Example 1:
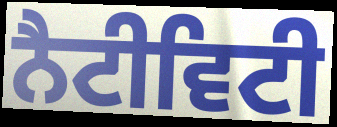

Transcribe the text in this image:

ਨੈਟੀਵਿਟੀ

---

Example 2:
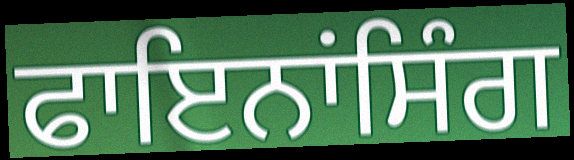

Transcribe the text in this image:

ਫਾਇਨਾਂਸਿੰਗ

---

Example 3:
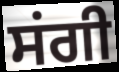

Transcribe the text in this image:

ਸਂਗੀ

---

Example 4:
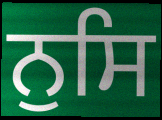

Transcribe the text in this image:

ਨੁਸਿ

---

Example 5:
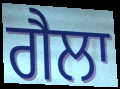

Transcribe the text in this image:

ਗੈਲਾ